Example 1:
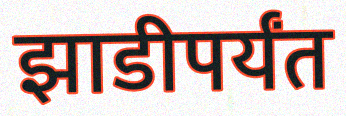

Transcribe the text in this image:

झाडीपर्यंत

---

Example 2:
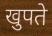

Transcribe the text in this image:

खुपते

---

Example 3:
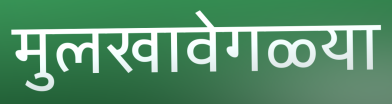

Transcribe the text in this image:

मुलखावेगळ्या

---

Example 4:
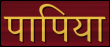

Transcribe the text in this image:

पापिया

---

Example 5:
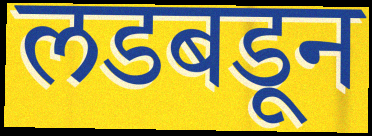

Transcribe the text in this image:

लडबडून